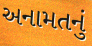
અનામતનું